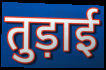
तुड़ाई